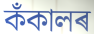
কঁকালৰ